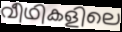
വീഥികളിലെ